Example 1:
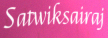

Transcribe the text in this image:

Satwiksairaj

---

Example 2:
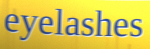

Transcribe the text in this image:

eyelashes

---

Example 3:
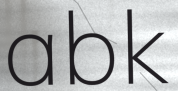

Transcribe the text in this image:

abk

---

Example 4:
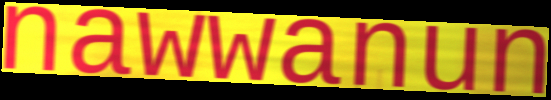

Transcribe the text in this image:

nawwanun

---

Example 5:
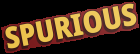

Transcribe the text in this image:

SPURIOUS